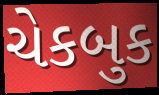
ચેકબુક